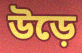
উড়ে